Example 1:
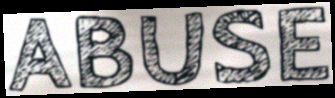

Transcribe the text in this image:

ABUSE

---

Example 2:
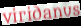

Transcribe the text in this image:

viridanus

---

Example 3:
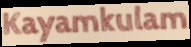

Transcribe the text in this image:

Kayamkulam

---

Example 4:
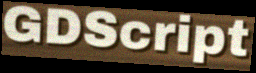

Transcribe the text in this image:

GDScript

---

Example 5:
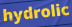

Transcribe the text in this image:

hydrolic